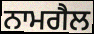
ਨਾਮਗੈਲ